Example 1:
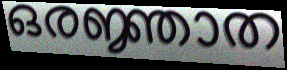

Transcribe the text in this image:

ഒരജ്ഞാത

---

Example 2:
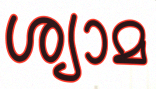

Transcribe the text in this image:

ശ്യാമ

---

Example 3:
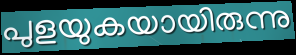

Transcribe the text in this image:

പുളയുകയായിരുന്നു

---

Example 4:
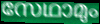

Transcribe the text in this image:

സേഥാമും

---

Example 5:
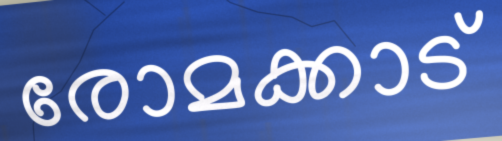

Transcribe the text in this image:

രോമക്കാട്